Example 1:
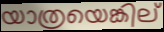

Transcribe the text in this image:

യാത്രയെങ്കില്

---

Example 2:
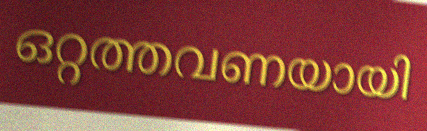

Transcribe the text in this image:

ഒറ്റത്തവണയായി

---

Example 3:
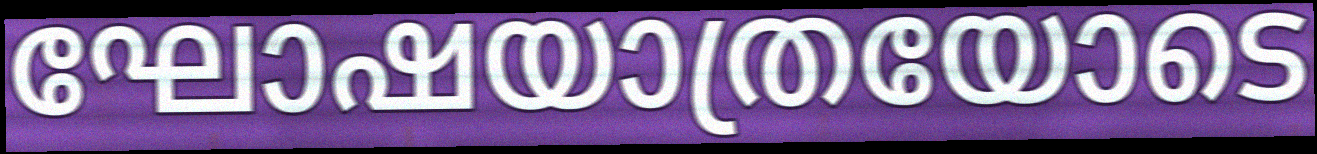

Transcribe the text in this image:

ഘോഷയാത്രയോടെ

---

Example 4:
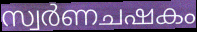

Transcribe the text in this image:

സ്വർണചഷകം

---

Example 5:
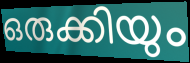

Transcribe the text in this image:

ഒരുക്കിയും